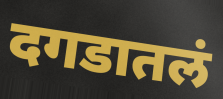
दगडातलं